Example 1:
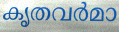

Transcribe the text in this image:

കൃതവർമാ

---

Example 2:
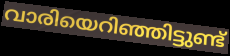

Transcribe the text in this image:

വാരിയെറിഞ്ഞിട്ടുണ്ട്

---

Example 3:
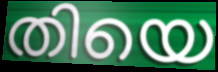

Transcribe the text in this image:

തിയെ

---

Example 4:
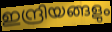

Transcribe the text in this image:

ഇന്ദ്രിയങ്ങളും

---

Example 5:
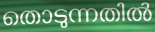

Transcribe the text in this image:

തൊടുന്നതിൽ